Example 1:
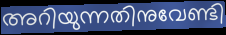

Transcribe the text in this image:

അറിയുന്നതിനുവേണ്ടി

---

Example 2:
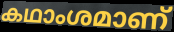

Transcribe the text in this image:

കഥാംശമാണ്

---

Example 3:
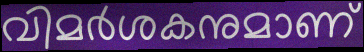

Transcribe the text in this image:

വിമർശകനുമാണ്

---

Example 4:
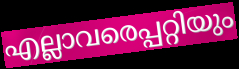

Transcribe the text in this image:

എല്ലാവരെപ്പറ്റിയും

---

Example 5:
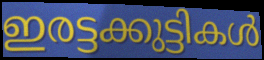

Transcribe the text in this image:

ഇരട്ടക്കുട്ടികൾ